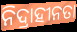
ନିଦ୍ରାହୀନତା